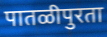
पातळीपुरता